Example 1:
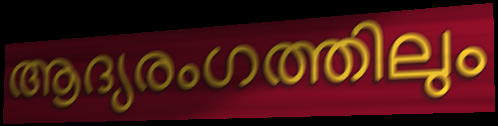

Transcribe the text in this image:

ആദ്യരംഗത്തിലും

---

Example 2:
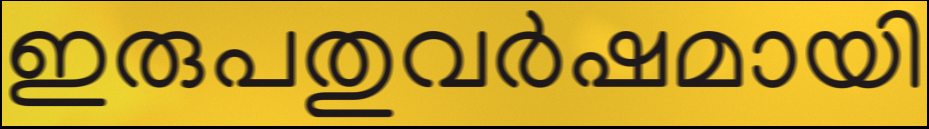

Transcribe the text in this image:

ഇരുപതുവർഷമായി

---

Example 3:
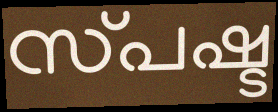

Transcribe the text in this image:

സ്‌പഷ്ട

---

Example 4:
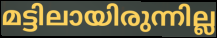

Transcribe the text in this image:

മട്ടിലായിരുന്നില്ല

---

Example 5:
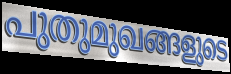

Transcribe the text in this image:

പുതുമുഖങ്ങളുടെ